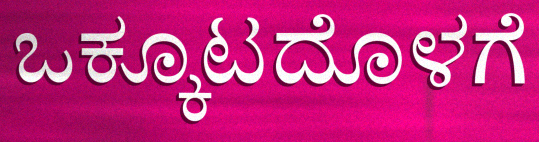
ಒಕ್ಕೂಟದೊಳಗೆ